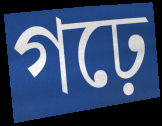
গঢ়ে